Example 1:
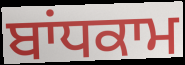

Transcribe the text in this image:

ਬਾਂਧਕਾਮ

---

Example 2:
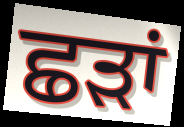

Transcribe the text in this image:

ਛੜਾਂ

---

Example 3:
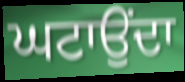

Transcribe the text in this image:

ਘਟਾਉੁਂਦਾ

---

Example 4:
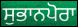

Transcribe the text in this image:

ਸੁਭਾਨਪੋਰਾ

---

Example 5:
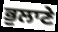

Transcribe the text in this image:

ਭੁਲਾਣੇ